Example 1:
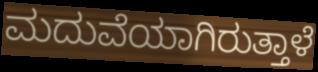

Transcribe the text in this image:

ಮದುವೆಯಾಗಿರುತ್ತಾಳೆ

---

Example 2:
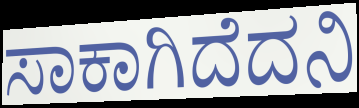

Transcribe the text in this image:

ಸಾಕಾಗಿದೆದನಿ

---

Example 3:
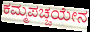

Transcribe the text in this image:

ಕಮ್ಮಪಚ್ಚಯೇನ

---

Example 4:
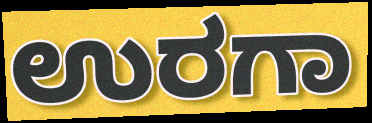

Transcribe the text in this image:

ಉರಗಾ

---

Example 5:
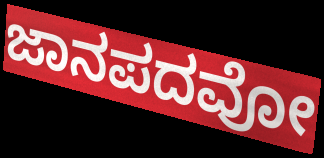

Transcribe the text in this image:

ಜಾನಪದವೋ